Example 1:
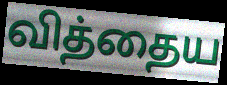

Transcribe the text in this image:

வித்தைய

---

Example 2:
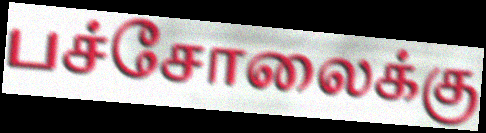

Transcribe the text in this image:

பச்சோலைக்கு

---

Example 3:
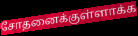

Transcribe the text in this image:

சோதனைக்குள்ளாக்க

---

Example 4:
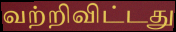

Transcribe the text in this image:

வற்றிவிட்டது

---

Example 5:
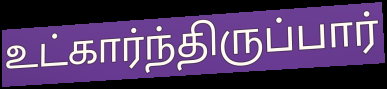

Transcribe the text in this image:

உட்கார்ந்திருப்பார்